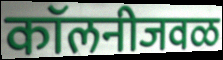
कॉलनीजवळ